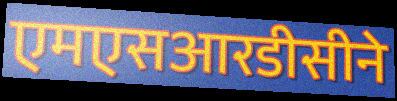
एमएसआरडीसीने